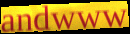
andwww